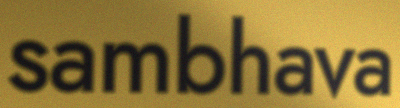
sambhava